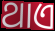
ଥାଏ